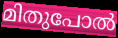
മിതുപോൽ